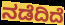
ನಡೆದಿದೆ